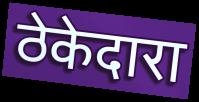
ठेकेदारा